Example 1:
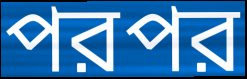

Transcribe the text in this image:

পরপর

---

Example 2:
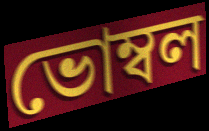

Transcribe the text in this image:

ভোম্বল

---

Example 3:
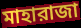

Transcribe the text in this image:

মাহারাজা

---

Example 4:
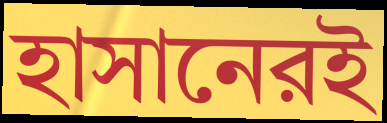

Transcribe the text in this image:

হাসানেরই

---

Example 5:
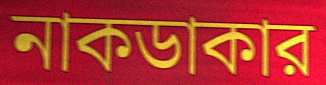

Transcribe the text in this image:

নাকডাকার